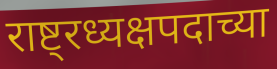
राष्ट्रध्यक्षपदाच्या